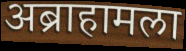
अब्राहामला